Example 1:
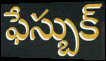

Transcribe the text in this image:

ఫేస్బుక్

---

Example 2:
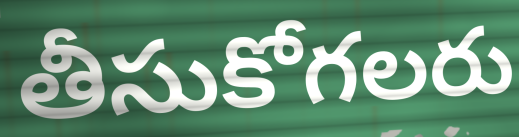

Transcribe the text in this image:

తీసుకోగలరు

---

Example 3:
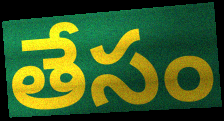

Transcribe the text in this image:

తేసం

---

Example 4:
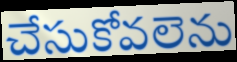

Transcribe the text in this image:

చేసుకోవలెను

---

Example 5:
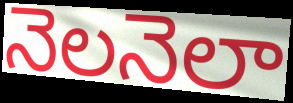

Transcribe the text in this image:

నెలనెలా